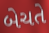
બેચતે